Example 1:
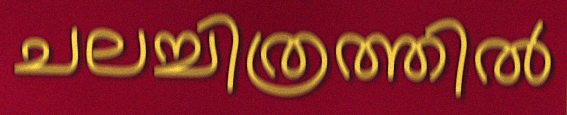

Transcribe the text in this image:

ചലച്ചിത്രത്തിൽ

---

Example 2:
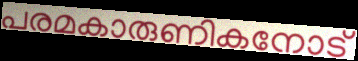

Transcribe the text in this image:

പരമകാരുണികനോട്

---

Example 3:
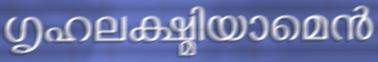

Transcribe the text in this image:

ഗൃഹലക്ഷ്മിയാമെൻ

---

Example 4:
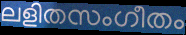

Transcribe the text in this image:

ലളിതസംഗീതം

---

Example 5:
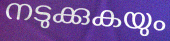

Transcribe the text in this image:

നടുക്കുകയും